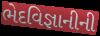
ભેદવિજ્ઞાનીની